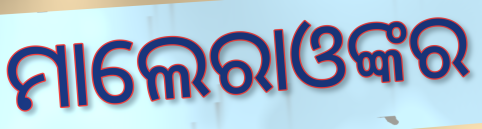
ମାଲେରାଓଙ୍କର